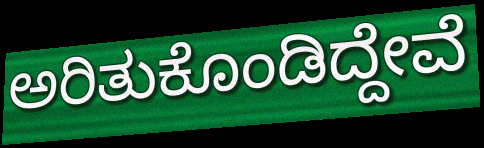
ಅರಿತುಕೊಂಡಿದ್ದೇವೆ